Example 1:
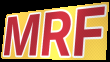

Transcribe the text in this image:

MRF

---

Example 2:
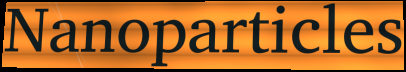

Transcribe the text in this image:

Nanoparticles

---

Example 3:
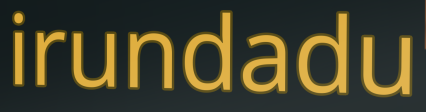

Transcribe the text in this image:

irundadu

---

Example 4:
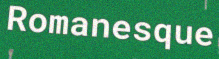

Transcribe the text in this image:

Romanesque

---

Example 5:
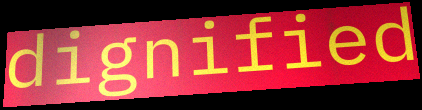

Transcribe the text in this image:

dignified